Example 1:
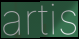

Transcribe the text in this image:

artis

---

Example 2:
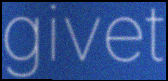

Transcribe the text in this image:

givet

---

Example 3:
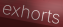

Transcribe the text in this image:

exhorts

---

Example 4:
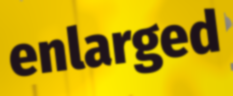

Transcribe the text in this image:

enlarged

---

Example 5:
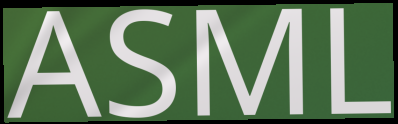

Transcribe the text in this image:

ASML